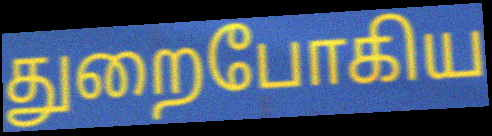
துறைபோகிய